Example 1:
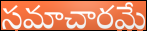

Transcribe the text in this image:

సమాచారమే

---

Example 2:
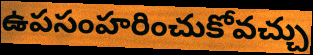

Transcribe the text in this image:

ఉపసంహరించుకోవచ్చు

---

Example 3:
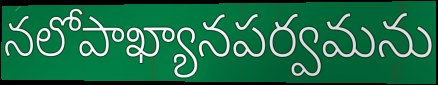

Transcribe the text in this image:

నలోపాఖ్యానపర్వమను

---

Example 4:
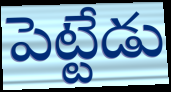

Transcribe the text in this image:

పెట్టేడు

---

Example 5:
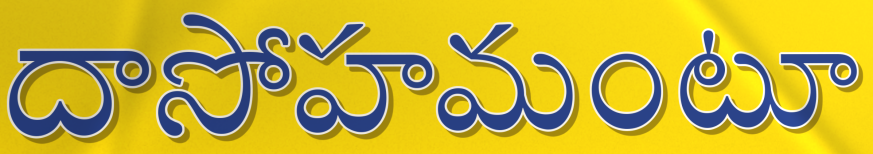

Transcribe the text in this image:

దాసోహమంటూ